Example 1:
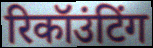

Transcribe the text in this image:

रिकॉउंटिंग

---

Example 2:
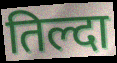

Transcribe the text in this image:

तिल्दा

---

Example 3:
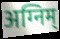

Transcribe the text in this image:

अग्निम्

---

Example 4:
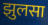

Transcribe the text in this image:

झुलसा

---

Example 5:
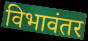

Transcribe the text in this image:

विभावंतर